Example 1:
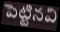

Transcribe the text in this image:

పెట్టినవి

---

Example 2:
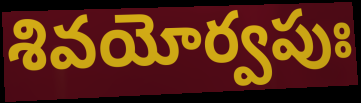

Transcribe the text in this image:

శివయోర్వపుః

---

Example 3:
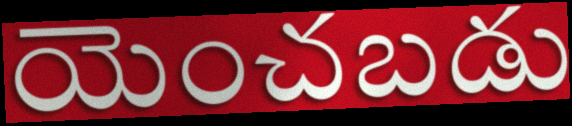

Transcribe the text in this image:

యెంచబడు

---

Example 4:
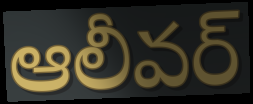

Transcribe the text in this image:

ఆలీవర్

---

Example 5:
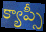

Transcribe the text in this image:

క్యాప్సీ